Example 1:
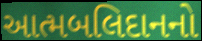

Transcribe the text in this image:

આત્મબલિદાનનો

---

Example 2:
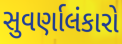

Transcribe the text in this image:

સુવર્ણાલંકારો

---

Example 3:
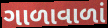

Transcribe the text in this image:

ગાળાવાળાં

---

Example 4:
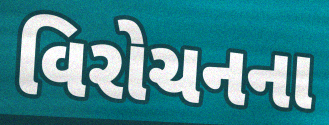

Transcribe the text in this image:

વિરોચનના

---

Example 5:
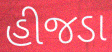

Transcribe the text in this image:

હીજડા